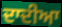
ਦਾਦੀਆ